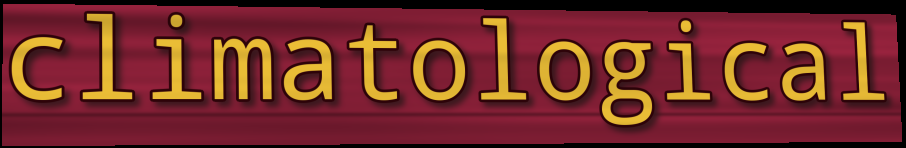
climatological